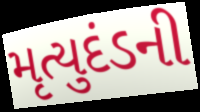
મૃત્યુદંડની